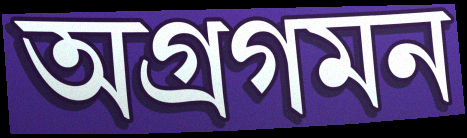
অগ্রগমন